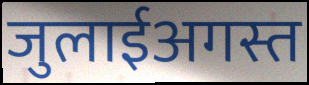
जुलाईअगस्त